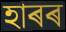
হাৰৰ